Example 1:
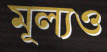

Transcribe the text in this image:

মূল্যও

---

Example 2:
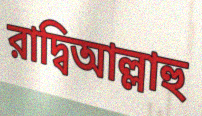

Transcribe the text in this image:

রাদ্বিআল্লাহু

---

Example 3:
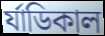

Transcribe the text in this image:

র্যাডিকাল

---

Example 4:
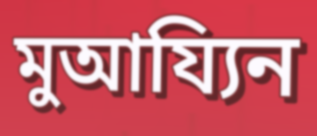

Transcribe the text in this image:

মুআয্যিন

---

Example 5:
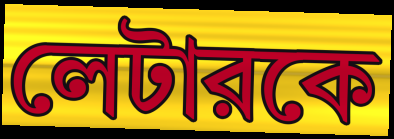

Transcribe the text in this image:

লেটারকে